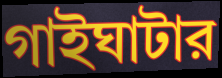
গাইঘাটার